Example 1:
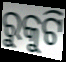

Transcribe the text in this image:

ରୁକୁଟି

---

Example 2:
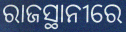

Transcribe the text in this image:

ରାଜସ୍ଥାନୀରେ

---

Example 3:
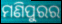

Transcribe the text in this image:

ମଣିପୁରର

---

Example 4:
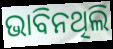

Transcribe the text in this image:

ଭାବିନଥିଲି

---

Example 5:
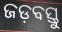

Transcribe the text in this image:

ଜଡ଼ବସ୍ତୁ